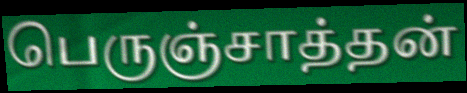
பெருஞ்சாத்தன்